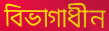
বিভাগাধীন